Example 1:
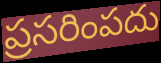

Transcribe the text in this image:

ప్రసరింపదు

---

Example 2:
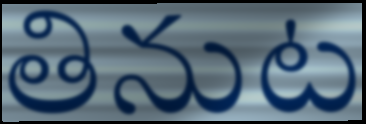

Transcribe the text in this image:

తినుట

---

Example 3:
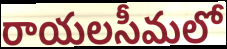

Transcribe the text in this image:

రాయలసీమలో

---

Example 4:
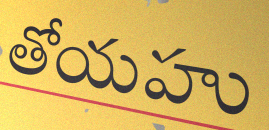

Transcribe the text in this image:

తోయహు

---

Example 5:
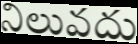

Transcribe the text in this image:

నిలువదు